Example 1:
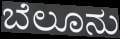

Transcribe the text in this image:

ಬೆಲೂನು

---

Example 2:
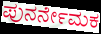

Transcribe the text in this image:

ಪುನರ್ನೇಮಕ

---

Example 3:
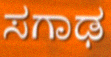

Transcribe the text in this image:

ಸಗಾಢ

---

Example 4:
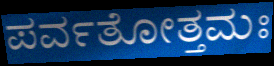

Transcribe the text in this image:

ಪರ್ವತೋತ್ತಮಃ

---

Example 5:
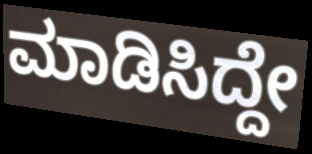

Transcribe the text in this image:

ಮಾಡಿಸಿದ್ದೇ